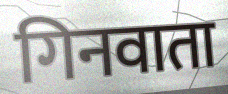
गिनवाता